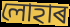
লোহাৰ